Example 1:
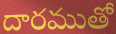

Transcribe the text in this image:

దారముతో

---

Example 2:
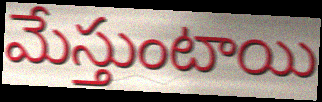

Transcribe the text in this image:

మేస్తుంటాయి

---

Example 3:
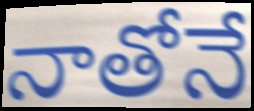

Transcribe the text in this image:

నాతోనే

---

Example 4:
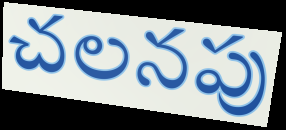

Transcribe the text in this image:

చలనపు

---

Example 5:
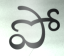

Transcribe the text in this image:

పో